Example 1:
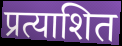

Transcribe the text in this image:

प्रत्याशित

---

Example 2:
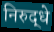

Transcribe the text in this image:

निरुद्धे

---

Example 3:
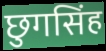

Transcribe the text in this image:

छुगसिंह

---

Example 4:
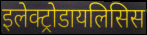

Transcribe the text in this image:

इलेक्ट्रोडायलिसिस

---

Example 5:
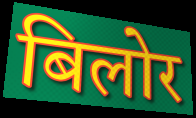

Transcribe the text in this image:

बिलोर